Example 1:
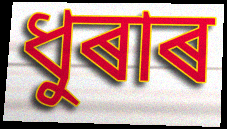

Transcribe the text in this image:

ধুৰাৰ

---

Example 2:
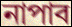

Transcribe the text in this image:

নাপাব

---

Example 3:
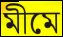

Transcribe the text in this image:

মীমে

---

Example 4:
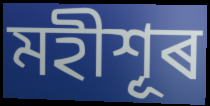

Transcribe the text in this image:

মহীশূৰ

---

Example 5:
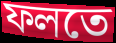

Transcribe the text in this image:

ফলতে